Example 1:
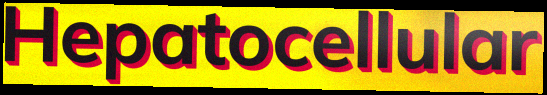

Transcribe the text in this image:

Hepatocellular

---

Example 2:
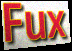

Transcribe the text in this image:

Fux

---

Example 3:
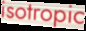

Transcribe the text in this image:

isotropic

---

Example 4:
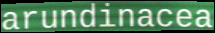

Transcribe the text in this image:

arundinacea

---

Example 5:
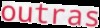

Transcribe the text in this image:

outras